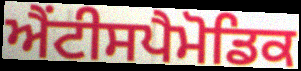
ਐਂਟੀਸਪੈਮੋਡਿਕ